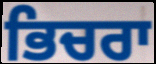
ਭਿਚਰਾ